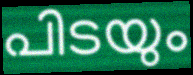
പിടയും